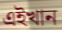
এইখান